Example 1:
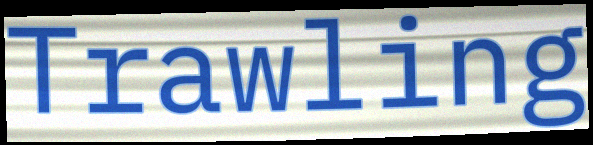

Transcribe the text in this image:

Trawling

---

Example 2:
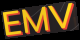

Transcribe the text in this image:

EMV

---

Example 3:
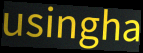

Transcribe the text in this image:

usingha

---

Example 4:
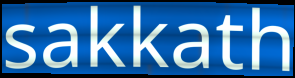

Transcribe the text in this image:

sakkath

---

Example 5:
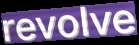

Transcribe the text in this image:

revolve